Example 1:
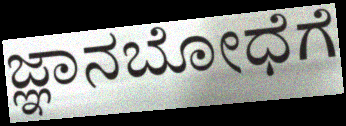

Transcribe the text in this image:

ಜ್ಞಾನಬೋಧೆಗೆ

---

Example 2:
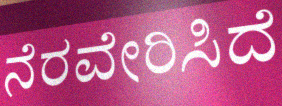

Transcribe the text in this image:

ನೆರವೇರಿಸಿದೆ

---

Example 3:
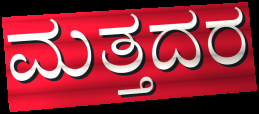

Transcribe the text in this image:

ಮತ್ತದರ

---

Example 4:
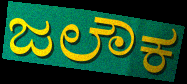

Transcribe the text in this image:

ಜಲೌಕ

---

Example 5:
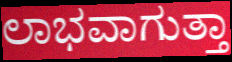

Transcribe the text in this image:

ಲಾಭವಾಗುತ್ತಾ